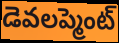
డెవలప్మెంట్